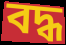
বদ্ধ